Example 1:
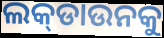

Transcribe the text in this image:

ଲକ୍‌ଡାଉନକୁ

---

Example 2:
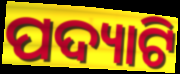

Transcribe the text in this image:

ପଦ୍ୟାଟି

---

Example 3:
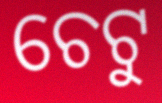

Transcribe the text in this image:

ଚେଟୁ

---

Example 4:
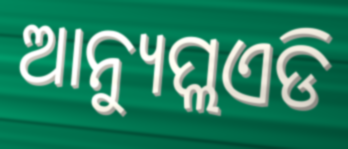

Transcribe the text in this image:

ଆନ୍ୟୁପ୍ଲଏଡି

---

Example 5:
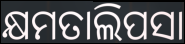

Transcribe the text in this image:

କ୍ଷମତାଲିପସା